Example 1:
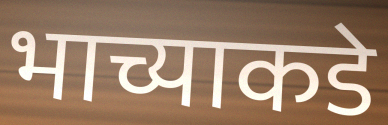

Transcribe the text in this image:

भाच्याकडे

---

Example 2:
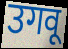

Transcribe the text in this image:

उगवू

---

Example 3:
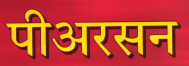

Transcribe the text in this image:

पीअरसन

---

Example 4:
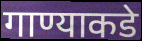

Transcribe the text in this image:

गाण्याकडे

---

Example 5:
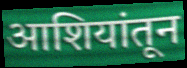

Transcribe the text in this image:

आशियांतून